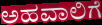
ಅಹವಾಲಿಗೆ